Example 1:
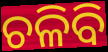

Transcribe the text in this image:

ଚଳିବି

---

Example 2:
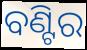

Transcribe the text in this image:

ବଣ୍ଟିର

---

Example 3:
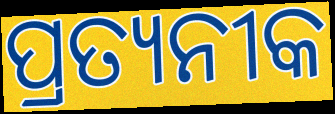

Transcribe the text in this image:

ପ୍ରତ୍ୟନୀକ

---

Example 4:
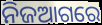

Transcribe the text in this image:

ନିଜଆଗରେ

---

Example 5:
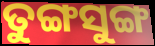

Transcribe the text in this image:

ତୁଙ୍ଗସୁଙ୍ଗ